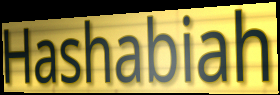
Hashabiah